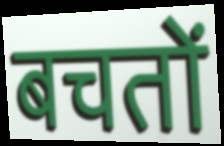
बचतों